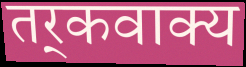
तर्कवाक्य